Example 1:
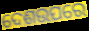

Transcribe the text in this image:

ଦେଶଉପରେ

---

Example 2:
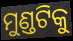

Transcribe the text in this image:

ମୁଣ୍ଡଟିକୁ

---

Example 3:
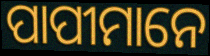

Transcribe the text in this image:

ପାପୀମାନେ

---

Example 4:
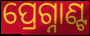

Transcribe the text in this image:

ପ୍ରେଗ୍ନାଣ୍ଟ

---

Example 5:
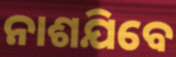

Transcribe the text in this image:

ନାଶଯିବେ